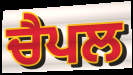
ਚੈਪਲ